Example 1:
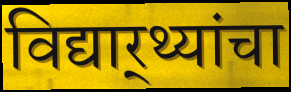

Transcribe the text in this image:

विद्यार्थ्यांचा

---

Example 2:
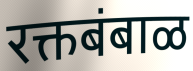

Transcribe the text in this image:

रक्तबंबाळ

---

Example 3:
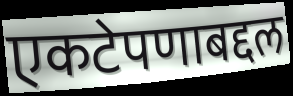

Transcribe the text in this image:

एकटेपणाबद्दल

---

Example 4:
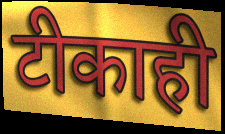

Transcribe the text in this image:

टीकाही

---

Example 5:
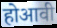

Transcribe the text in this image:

होआवी